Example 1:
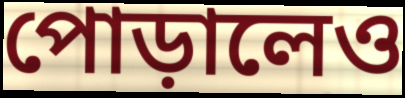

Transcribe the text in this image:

পোড়ালেও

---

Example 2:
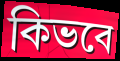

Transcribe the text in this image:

কিভবে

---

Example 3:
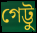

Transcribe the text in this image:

গেট্টু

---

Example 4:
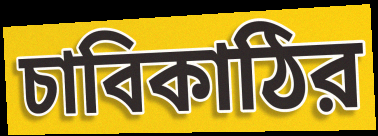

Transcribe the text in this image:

চাবিকাঠির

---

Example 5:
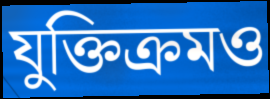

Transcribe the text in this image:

যুক্তিক্রমও